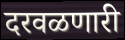
दरवळणारी